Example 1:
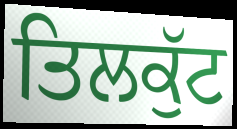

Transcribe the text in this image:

ਤਿਲਕੁੱਟ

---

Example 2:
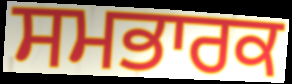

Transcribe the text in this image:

ਸਮਭਾਰਕ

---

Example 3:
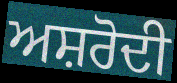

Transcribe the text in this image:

ਅਸ਼ਰੋਦੀ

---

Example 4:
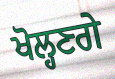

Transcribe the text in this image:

ਖੋਲ੍ਹਣਗੇ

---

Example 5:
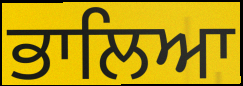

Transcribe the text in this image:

ਭਾਲਿਆ